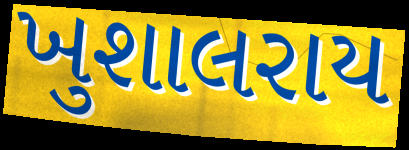
ખુશાલરાય